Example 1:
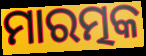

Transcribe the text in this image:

ମାରତ୍ମକ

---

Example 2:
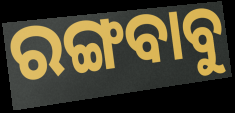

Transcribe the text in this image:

ରଙ୍ଗବାବୁ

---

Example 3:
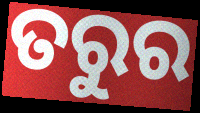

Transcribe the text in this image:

ତରୁର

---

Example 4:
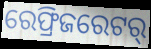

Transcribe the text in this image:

ରେଫ୍ରିଜରେଟର୍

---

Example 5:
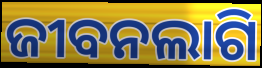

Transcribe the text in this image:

ଜୀବନଲାଗି